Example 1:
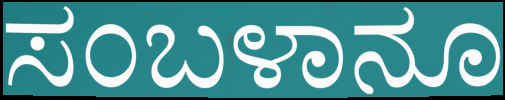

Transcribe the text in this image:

ಸಂಬಳಾನೂ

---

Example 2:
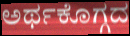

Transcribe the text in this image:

ಅರ್ಥಕೊಗ್ಗದ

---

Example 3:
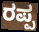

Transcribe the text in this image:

ರಪ್ಪ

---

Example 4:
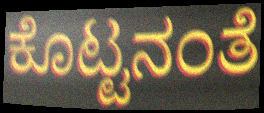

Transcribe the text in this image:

ಕೊಟ್ಟನಂತೆ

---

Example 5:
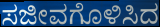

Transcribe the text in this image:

ಸಜೀವಗೊಳಿಸಿದ